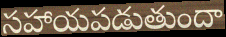
సహాయపడుతుందా